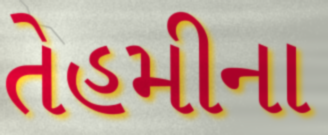
તેહમીના